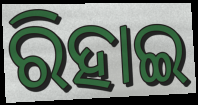
ରିହାଇ